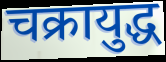
चक्रायुद्ध